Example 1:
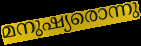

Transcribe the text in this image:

മനുഷ്യരൊന്നു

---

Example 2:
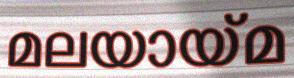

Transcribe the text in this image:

മലയായ്മ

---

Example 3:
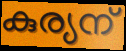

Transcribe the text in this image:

കുര്യന്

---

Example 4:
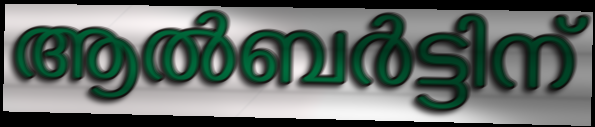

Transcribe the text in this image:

ആൽബർട്ടിന്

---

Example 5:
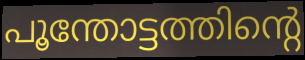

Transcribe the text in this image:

പൂന്തോട്ടത്തിന്റെ